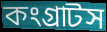
কংগ্রাটস